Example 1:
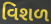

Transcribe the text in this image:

વિશળ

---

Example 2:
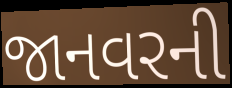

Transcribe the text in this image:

જાનવરની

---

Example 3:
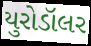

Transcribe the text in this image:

યુરોડૉલર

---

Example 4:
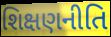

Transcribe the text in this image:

શિક્ષણનીતિ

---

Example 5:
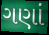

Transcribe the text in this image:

ગણાં